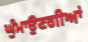
ਘੁੰਮਾਉਣਗੀਆਂ